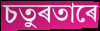
চতুৰতাৰে